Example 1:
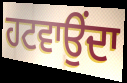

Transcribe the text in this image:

ਹਟਵਾਉਂਦਾ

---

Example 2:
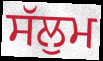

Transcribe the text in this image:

ਸੱਲੁਮ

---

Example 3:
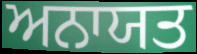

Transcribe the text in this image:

ਅਨਾਯਤ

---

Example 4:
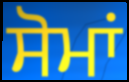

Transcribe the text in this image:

ਸੋਮਾਂ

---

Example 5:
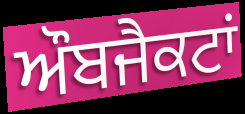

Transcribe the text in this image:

ਔਬਜੈਕਟਾਂ